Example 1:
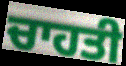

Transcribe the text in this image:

ਚਾਹਤੀ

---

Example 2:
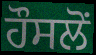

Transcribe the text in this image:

ਹੌਸਲੋਂ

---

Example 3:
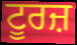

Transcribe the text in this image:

ਟੂਰਜ਼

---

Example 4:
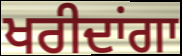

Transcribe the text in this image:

ਖਰੀਦਾਂਗਾ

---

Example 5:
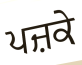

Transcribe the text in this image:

ਪਜ਼ਕੇ